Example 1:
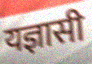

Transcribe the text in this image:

यज्ञासी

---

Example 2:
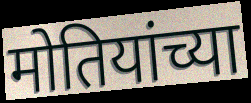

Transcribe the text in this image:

मोतियांच्या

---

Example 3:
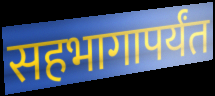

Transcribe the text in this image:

सहभागापर्यंत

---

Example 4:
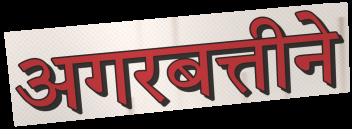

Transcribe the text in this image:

अगरबत्तीने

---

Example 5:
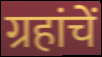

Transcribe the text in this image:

ग्रहांचें